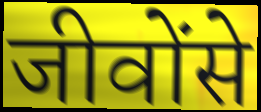
जीवोंसे